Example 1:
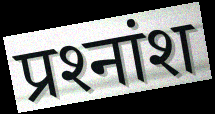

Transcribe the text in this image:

प्रश्‍नांश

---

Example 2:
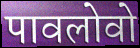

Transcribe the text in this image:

पावलोवो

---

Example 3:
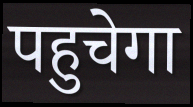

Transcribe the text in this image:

पहुचेगा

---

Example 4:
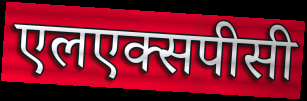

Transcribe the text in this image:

एलएक्सपीसी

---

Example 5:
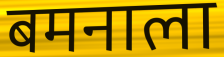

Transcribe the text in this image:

बमनाला